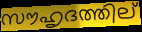
സൗഹൃദത്തില്